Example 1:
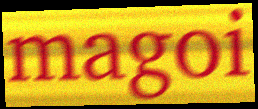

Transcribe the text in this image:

magoi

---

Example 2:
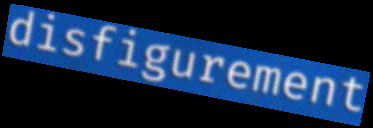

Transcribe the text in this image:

disfigurement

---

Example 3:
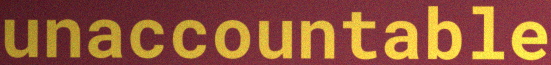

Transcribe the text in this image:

unaccountable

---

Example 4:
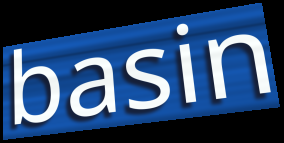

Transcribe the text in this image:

basin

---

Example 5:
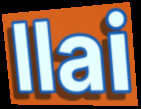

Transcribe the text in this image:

Ilai